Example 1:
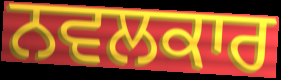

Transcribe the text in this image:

ਨਵਲਕਾਰ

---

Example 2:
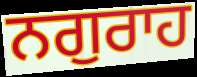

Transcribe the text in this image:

ਨਗੁਰਾਹ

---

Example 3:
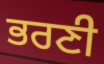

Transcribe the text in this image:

ਭਰਣੀ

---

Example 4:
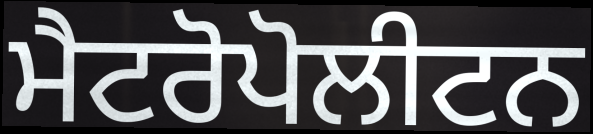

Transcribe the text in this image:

ਮੈਟਰੋਪੋਲੀਟਨ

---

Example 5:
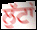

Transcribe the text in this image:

ਲੁੱਟਾਂ